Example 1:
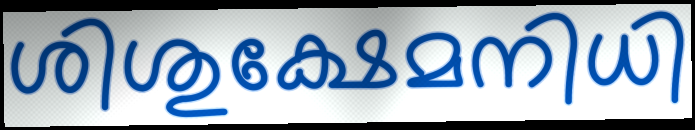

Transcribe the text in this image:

ശിശുക്ഷേമനിധി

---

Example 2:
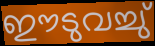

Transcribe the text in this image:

ഈടുവച്ചു്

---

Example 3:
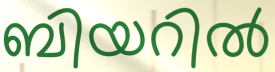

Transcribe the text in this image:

ബിയറിൽ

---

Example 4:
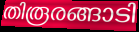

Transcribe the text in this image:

തിരൂരങ്ങാടി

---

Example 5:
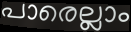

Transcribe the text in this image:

പാരെല്ലാം